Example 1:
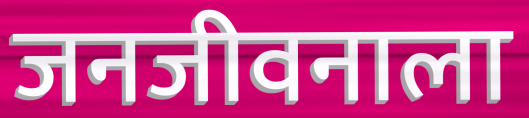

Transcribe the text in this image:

जनजीवनाला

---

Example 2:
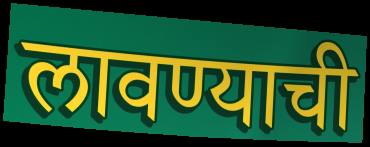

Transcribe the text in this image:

लावण्याची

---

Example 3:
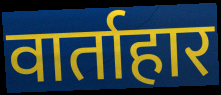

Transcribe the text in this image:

वार्ताहार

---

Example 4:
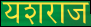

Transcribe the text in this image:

यशराज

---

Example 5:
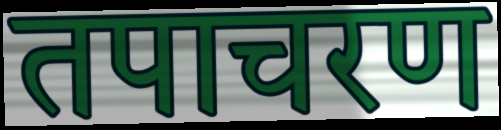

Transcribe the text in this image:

तपाचरण